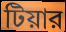
টিয়ার